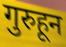
गुरुहून